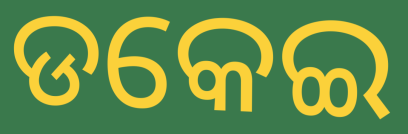
ଡକେଇ